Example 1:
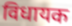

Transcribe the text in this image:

विधायक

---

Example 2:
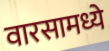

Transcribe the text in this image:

वारसामध्ये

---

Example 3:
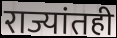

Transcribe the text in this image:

राज्यांतही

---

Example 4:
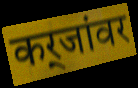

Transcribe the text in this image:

कर्जांवर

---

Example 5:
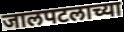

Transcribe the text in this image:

जालपटलाच्या